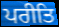
ਪਰੀਤਿ